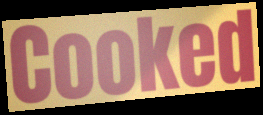
Cooked